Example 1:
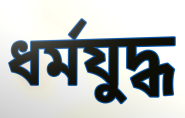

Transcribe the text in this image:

ধর্মযুদ্ধ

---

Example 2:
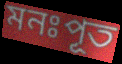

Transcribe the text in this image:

মনঃপূত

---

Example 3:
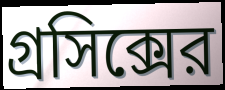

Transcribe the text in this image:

গ্রসিক্সের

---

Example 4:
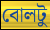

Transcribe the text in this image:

বোলটু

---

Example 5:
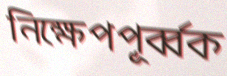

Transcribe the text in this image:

নিক্ষেপপূর্ব্বক